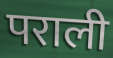
पराली